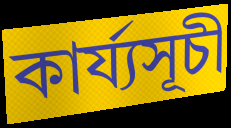
কাৰ্য্যসূচী